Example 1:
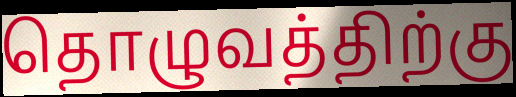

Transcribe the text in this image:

தொழுவத்திற்கு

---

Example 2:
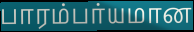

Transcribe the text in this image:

பாரம்பர்யமான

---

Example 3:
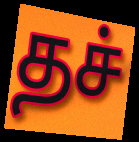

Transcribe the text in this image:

தச்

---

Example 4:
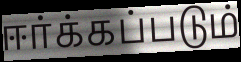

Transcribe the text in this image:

ஈர்க்கப்படும்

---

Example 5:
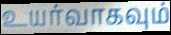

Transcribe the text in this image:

உயர்வாகவும்